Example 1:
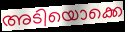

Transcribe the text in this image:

അടിയൊക്കെ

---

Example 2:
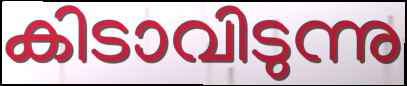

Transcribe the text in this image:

കിടാവിടുന്നു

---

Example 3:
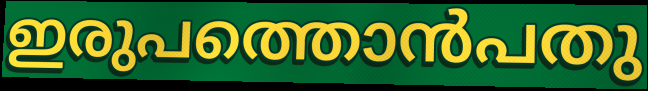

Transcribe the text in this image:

ഇരുപത്തൊൻപതു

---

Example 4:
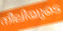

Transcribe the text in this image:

നീലിയുടെ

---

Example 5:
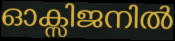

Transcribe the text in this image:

ഓക്സിജനിൽ